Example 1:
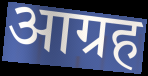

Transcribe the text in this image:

आग्रह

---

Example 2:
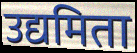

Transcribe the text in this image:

उद्यमिता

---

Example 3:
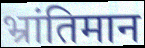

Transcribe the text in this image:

भ्रांतिमान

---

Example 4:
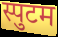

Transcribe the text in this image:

स्पुटम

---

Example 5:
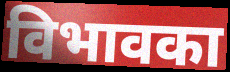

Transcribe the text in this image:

विभावका